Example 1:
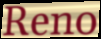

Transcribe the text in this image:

Reno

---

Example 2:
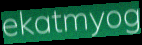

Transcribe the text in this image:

ekatmyog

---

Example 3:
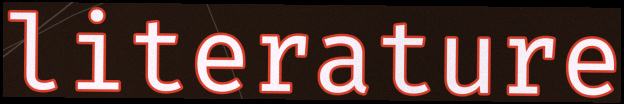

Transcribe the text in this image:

literature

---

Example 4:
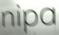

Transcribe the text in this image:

nipa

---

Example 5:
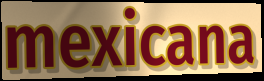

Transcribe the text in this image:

mexicana